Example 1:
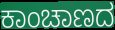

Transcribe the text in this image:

ಕಾಂಚಾಣದ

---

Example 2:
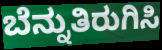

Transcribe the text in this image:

ಬೆನ್ನುತಿರುಗಿಸಿ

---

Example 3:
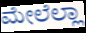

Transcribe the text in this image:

ಮೇಲೆಲ್ಲಾ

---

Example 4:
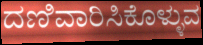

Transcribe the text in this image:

ದಣಿವಾರಿಸಿಕೊಳ್ಳುವ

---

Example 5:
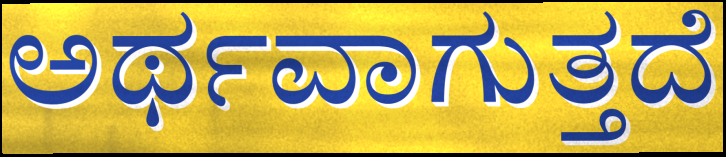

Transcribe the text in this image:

ಅರ್ಥವಾಗುತ್ತದೆ